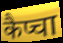
कैप्चा